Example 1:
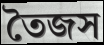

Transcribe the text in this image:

তৈজস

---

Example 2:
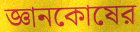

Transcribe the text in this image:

জ্ঞানকোষের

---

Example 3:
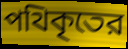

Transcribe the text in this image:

পথিকৃতের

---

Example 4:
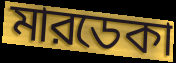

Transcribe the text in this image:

মারডেকা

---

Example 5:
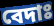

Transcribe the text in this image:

বেদাঃ